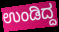
ಉಂಡಿದ್ದ